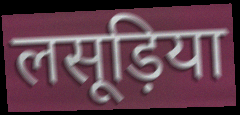
लसूड़िया